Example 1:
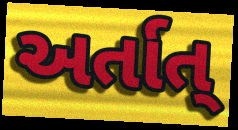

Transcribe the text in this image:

અર્તાત્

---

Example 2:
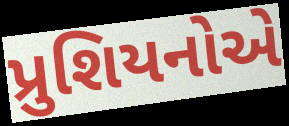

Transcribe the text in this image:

પ્રુશિયનોએ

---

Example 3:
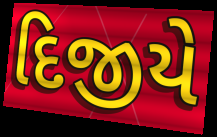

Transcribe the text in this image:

દિજીયે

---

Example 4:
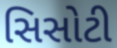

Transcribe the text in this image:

સિસોટી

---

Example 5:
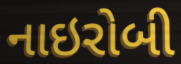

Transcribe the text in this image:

નાઇરોબી